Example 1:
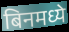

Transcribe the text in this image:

बिनमध्ये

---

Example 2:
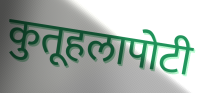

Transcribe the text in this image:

कुतूहलापोटी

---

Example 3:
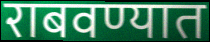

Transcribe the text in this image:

राबवण्यात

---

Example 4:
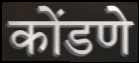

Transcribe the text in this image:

कोंडणे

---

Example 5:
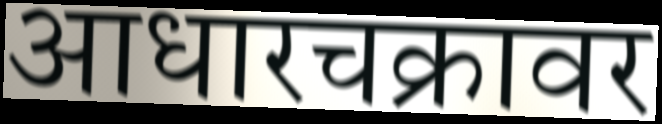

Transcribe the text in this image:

आधारचक्रावर